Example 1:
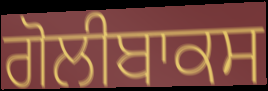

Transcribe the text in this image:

ਗੋਲੀਬਾਕਸ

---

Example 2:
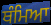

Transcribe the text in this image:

ਥੰਮਿਆ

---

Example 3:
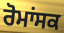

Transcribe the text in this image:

ਰੋਮਾਂਸਕ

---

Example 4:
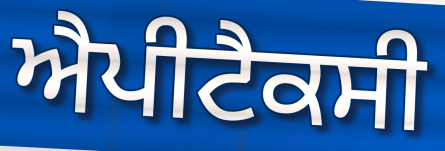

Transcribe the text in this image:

ਐਪੀਟੈਕਸੀ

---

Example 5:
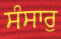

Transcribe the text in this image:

ਸੰਸਾਰੁ